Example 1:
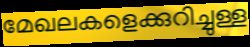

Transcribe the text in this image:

മേഖലകളെക്കുറിച്ചുള്ള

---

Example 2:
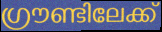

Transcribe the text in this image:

ഗ്രൗണ്ടിലേക്ക്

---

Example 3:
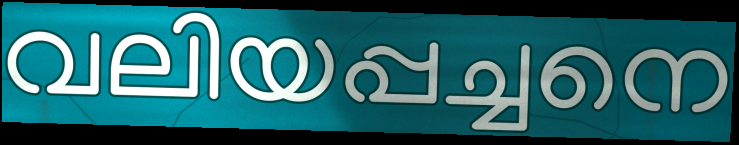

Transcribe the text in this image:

വലിയപ്പച്ചനെ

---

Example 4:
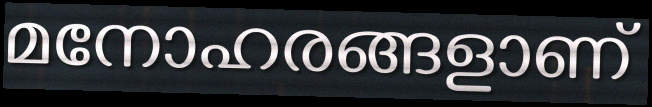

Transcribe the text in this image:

മനോഹരങ്ങളാണ്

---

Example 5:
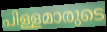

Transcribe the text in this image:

പിള്ളമാരുടെ